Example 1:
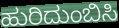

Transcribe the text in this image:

ಹುರಿದುಂಬಿಸಿ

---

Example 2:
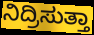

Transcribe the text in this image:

ನಿದ್ರಿಸುತ್ತಾ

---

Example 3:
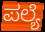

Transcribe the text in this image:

ಪಲ್ಯೆ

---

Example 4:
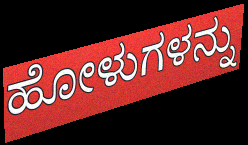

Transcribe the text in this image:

ಹೋಳುಗಳನ್ನು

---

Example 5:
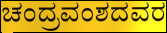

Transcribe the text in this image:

ಚಂದ್ರವಂಶದವರ